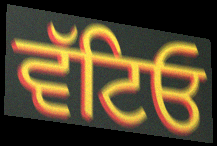
ਵੱਟਿਓ